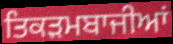
ਤਿਕੜਮਬਾਜੀਆਂ